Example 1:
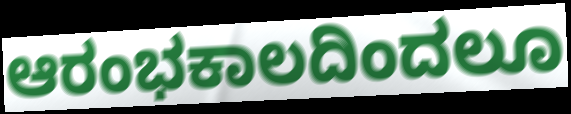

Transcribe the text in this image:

ಆರಂಭಕಾಲದಿಂದಲೂ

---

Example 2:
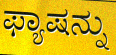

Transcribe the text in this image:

ಫ್ಯಾಷನ್ನು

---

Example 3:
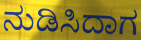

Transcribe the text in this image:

ನುಡಿಸಿದಾಗ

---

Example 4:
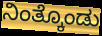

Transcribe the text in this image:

ನಿಂತ್ಕೊಂಡು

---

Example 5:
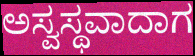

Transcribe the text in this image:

ಅಸ್ವಸ್ಥವಾದಾಗ